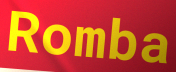
Romba